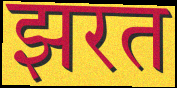
झरत